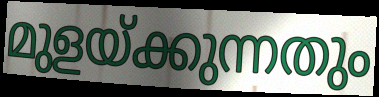
മുളയ്ക്കുന്നതും